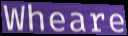
Wheare